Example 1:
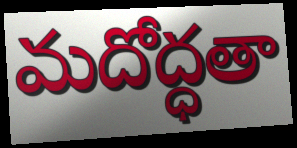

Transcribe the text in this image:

మదోద్ధతా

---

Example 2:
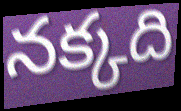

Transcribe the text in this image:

నక్కది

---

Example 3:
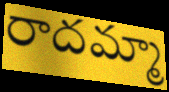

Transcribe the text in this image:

రాదమ్మా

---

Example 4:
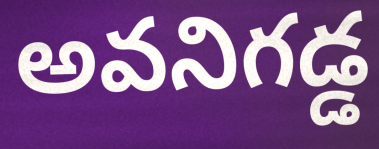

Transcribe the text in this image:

అవనిగడ్డ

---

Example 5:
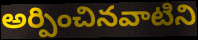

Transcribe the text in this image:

అర్పించినవాటిని